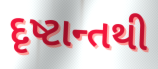
દૃષ્ટાન્તથી